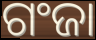
ଗଂଜା